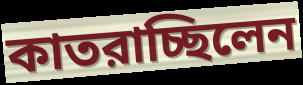
কাতরাচ্ছিলেন